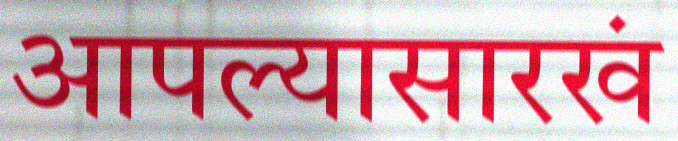
आपल्यासारखं